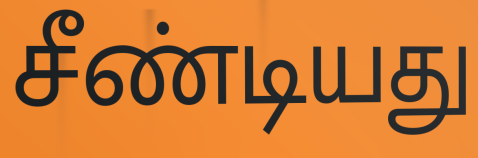
சீண்டியது